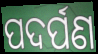
ପଦର୍ପଣ